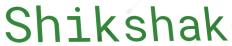
Shikshak